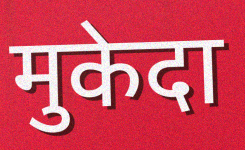
मुकेदा